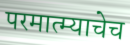
परमात्म्याचेच